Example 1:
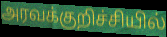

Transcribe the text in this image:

அரவக்குறிச்சியில்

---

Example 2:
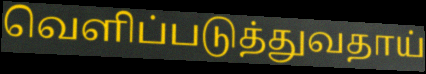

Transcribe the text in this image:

வெளிப்படுத்துவதாய்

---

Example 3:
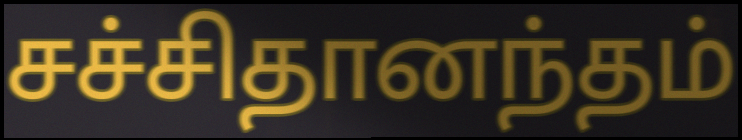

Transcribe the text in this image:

சச்சிதானந்தம்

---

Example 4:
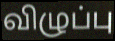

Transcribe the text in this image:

விழுப்பு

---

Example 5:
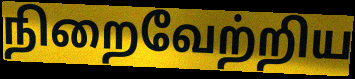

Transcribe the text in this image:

நிறைவேற்றிய